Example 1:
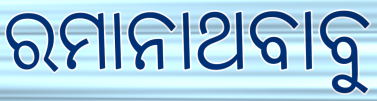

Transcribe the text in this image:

ରମାନାଥବାବୁ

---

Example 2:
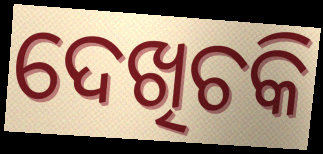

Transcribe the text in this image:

ଦେଖିଚକି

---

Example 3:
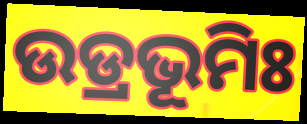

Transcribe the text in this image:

ଉଡ୍ରଭୂମିଃ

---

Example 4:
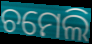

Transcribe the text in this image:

ଚମେଲି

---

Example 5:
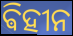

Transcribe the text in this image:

ଵିହୀନ